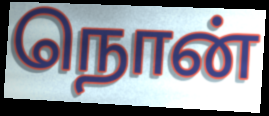
நொன்